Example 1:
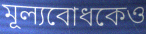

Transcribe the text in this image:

মূল্যবোধকেও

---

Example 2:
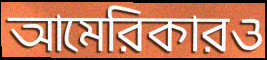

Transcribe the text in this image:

আমেরিকারও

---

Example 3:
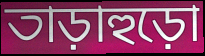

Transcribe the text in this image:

তাড়াহুড়ো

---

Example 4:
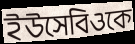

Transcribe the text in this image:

ইউসেবিওকে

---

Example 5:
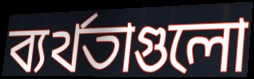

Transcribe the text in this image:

ব্যর্থতাগুলো